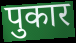
पुकार